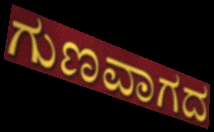
ಗುಣವಾಗದ